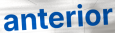
anterior